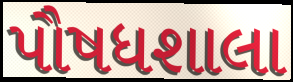
પૌષધશાલા